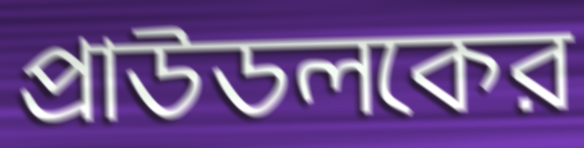
প্রাউডলকের